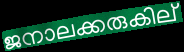
ജനാലക്കരുകില്